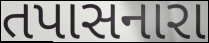
તપાસનારા